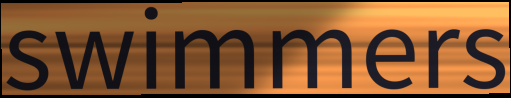
swimmers